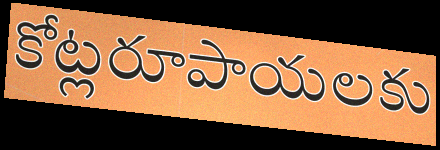
కోట్లరూపాయలకు